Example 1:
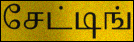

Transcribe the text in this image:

சேட்டிங்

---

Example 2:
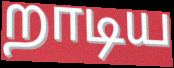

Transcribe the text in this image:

றாடிய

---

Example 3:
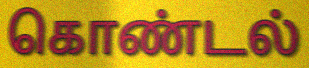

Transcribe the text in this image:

கொண்டல்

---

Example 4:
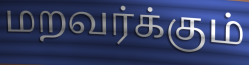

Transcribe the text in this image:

மறவர்க்கும்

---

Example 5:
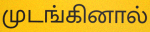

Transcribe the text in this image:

முடங்கினால்